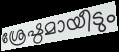
ശ്രേഷ്ഠമായീടും